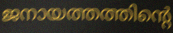
ജനായത്തത്തിന്റെ